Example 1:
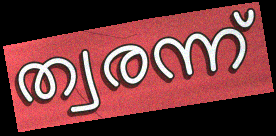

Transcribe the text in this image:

ത്വരന്ന്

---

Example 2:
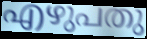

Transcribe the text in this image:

എഴുപതു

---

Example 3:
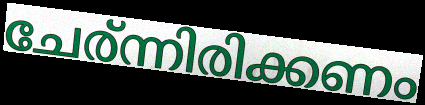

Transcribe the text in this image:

ചേര്ന്നിരിക്കണം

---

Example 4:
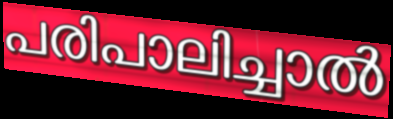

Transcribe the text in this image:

പരിപാലിച്ചാൽ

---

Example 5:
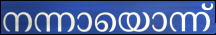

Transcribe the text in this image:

നന്നായൊന്ന്